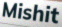
Mishit